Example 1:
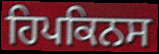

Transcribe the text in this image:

ਹਿਪਕਿਨਸ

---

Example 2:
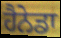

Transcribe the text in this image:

ਹੈਨੇਡਾ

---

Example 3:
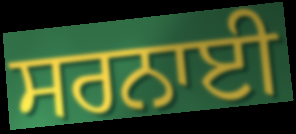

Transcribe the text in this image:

ਸਰਨਾਈ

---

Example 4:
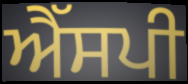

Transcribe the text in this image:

ਐੱਸਪੀ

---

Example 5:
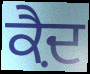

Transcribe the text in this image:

ਕ਼ੈਦ